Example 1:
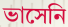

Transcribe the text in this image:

ভাসেনি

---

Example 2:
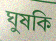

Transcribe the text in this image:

ঘুষকি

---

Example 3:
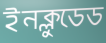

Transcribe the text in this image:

ইনক্লুডেড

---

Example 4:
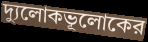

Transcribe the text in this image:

দ্যুলোকভূলোকের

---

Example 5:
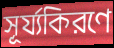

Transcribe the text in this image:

সূর্য্যকিরণে